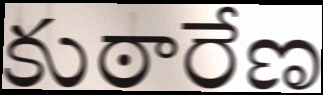
కుఠారేణ